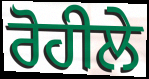
ਰੋਹੀਲੇ